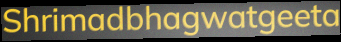
Shrimadbhagwatgeeta